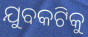
ଯୁବକଟିକୁ